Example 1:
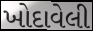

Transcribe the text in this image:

ખોદાવેલી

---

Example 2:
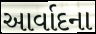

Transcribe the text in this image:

આર્વાદના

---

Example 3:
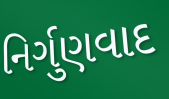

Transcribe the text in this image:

નિર્ગુણવાદ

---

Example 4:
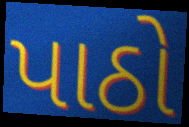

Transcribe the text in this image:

પાઠો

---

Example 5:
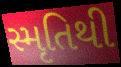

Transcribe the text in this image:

સ્મૃતિથી